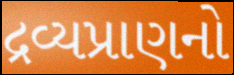
દ્રવ્યપ્રાણનો